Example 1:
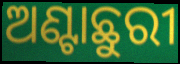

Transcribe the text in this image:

ଅଣ୍ଟାଛୁରୀ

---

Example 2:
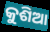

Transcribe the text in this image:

କୁଶିଆ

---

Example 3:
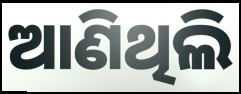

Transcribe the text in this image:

ଆଣିଥିଲି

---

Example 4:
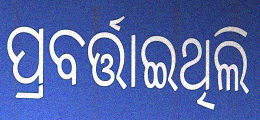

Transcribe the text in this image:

ପ୍ରବର୍ତ୍ତାଇଥିଲି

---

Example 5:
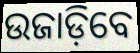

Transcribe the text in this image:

ଉଜାଡ଼ିବେ